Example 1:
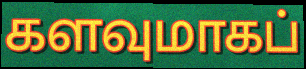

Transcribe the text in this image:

களவுமாகப்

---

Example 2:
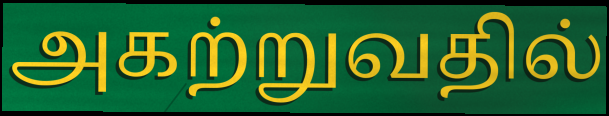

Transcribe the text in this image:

அகற்றுவதில்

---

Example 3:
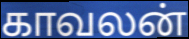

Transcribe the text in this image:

காவலன்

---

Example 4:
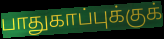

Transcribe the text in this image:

பாதுகாப்புக்குக்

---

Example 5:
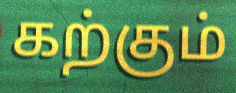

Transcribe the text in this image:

கற்கும்